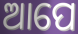
ଆପେ